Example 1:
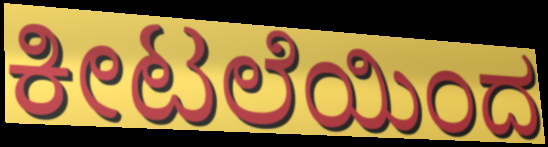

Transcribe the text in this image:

ಕೀಟಲೆಯಿಂದ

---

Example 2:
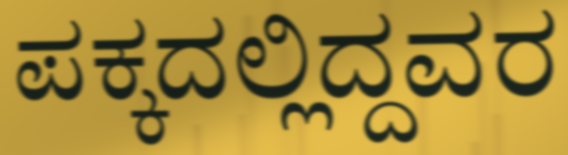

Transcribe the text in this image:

ಪಕ್ಕದಲ್ಲಿದ್ದವರ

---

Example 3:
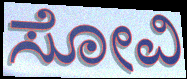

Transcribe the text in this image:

ಸೋವಿ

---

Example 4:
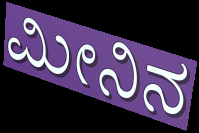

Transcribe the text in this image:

ಮೀನಿನ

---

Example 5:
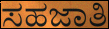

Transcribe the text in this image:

ಸಹಜಾತಿ